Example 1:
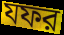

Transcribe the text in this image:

যফর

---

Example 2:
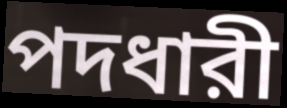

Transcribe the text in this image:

পদধারী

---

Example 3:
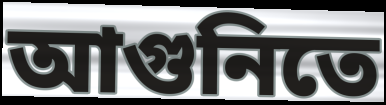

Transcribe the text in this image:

আগুনিতে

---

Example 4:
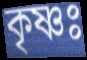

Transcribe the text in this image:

কৃষ্ণঃ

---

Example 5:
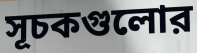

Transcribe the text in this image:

সূচকগুলোর